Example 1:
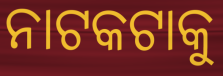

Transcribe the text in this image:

ନାଟକଟାକୁ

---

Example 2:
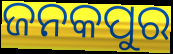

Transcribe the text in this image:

ଜନକପୁର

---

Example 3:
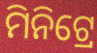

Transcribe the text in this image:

ମିନିଟ୍ରେ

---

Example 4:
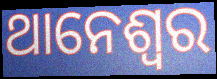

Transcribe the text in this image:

ଥାନେଶ୍ୱର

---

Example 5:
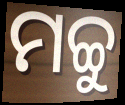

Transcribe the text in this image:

ମଚ୍ଚୁ